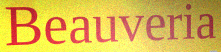
Beauveria